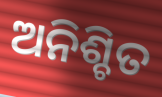
ଅନିଶ୍ଚିତ